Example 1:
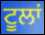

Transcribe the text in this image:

ਟੂਲਾਂ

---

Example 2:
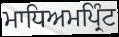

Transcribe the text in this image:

ਮਾਧਿਅਮਪ੍ਰਿੰਟ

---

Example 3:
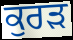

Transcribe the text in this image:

ਕੁਰੜ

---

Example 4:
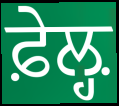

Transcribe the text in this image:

ਫ਼ੇਲ਼੍ਹ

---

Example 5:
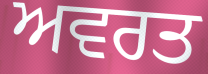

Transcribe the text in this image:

ਅਵਰਤ